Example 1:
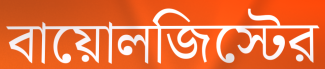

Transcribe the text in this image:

বায়োলজিস্টের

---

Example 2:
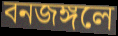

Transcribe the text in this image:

বনজঙ্গলে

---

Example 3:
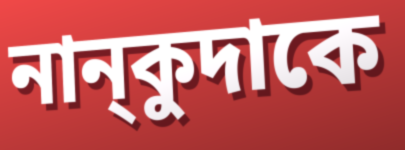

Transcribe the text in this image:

নান্‌কুদাকে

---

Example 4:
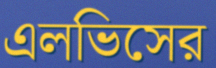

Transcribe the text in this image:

এলভিসের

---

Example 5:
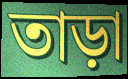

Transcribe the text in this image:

তাড়া